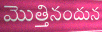
మొత్తినందున